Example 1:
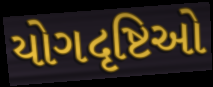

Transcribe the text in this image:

યોગદૃષ્ટિઓ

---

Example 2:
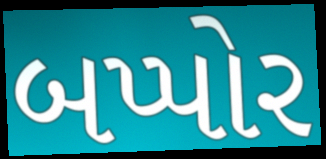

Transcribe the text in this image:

બપ્પોર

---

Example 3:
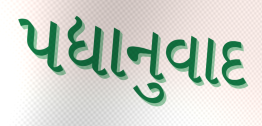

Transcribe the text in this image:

પદ્યાનુવાદ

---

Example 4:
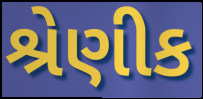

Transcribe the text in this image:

શ્રેણીક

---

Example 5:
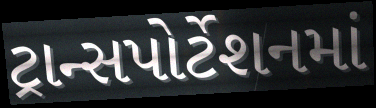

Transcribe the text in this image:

ટ્રાન્સપોર્ટેશનમાં